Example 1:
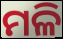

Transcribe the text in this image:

ମଳି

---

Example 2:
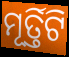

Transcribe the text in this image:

ମୂର୍ତ୍ତିଟି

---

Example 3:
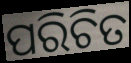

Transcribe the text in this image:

ପରିଚିତ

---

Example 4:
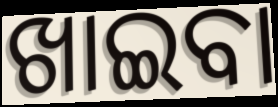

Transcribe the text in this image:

ଖାଇବା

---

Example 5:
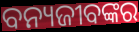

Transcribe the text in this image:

ବନ୍ୟଜୀବଙ୍କର